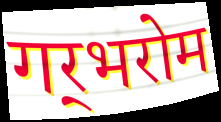
गर्भरोम